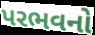
પરભવનો